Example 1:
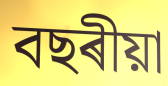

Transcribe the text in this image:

বছৰীয়া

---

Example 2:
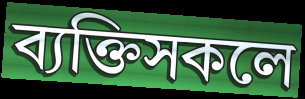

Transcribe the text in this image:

ব্যক্তিসকলে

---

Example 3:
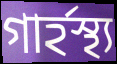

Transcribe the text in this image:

গাৰ্হস্থ্য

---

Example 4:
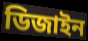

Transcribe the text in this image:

ডিজাইন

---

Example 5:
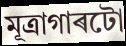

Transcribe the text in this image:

মূত্ৰাগাৰটো